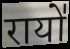
रायो॑